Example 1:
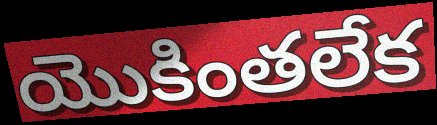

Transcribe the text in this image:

యొకింతలేక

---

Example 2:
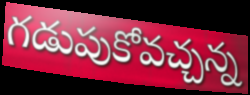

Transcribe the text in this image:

గడుపుకోవచ్చన్న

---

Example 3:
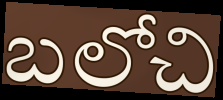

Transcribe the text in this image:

బలోచి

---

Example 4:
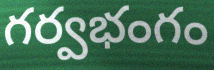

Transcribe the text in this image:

గర్వభంగం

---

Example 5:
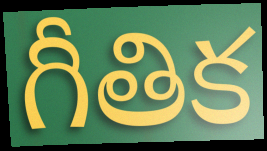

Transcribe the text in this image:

గీతిక